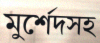
মুর্শেদসহ